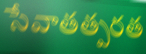
సేవాతత్పరత